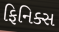
ફિનિક્સ